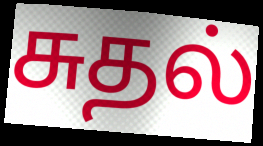
சுதல்